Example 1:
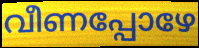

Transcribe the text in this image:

വീണപ്പോഴേ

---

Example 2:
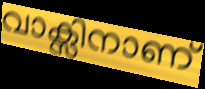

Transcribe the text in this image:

വാക്സിനാണ്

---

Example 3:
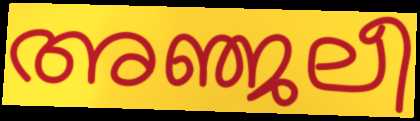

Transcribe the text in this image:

അഞ്ജലീ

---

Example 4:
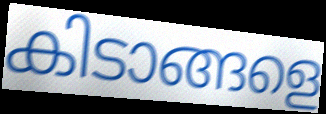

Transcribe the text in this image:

കിടാങ്ങളെ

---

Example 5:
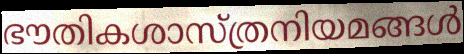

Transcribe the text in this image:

ഭൗതികശാസ്ത്രനിയമങ്ങൾ